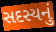
સદસ્યનું